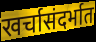
खर्चासंदर्भात